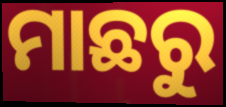
ମାଛରୁ